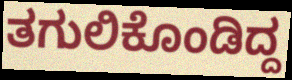
ತಗುಲಿಕೊಂಡಿದ್ದ